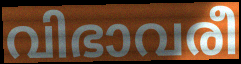
വിഭാവരീ